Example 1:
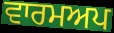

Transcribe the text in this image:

ਵਾਰਮਅਪ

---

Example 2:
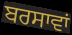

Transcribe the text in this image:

ਬਰਸਾਵਾਂ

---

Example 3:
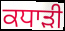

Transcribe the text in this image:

ਕਧਾੜੀ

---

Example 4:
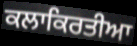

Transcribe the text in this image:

ਕਲਾਕਿਰਤੀਆ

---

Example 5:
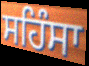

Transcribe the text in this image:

ਸਹਿੰਸਾ